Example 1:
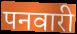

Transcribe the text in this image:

पनवारी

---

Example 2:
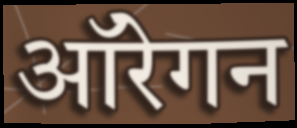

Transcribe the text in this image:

ऑरेगन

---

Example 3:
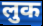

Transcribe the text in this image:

लुक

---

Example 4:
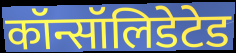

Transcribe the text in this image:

कॉन्सॉलिडेटेड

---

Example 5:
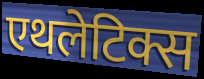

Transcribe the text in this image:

एथलेटिक्स